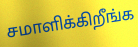
சமாளிக்கிறீங்க